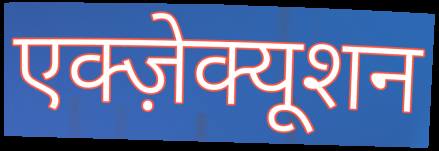
एक्ज़ेक्यूशन